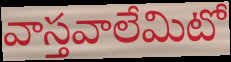
వాస్తవాలేమిటో